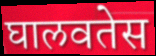
घालवतेस